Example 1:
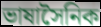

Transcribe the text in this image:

ভাষাসৈনিক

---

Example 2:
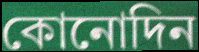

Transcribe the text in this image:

কোনোদিন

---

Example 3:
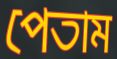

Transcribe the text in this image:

পেতাম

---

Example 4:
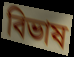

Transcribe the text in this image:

বিভাষ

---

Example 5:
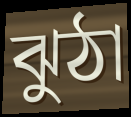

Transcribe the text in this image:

ঝুঠা